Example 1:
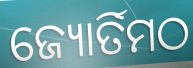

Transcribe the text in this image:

ଜ୍ୟୋର୍ତିମଠ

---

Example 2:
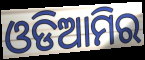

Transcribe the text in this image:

ଓଡିଆମିର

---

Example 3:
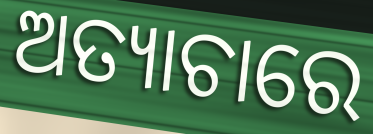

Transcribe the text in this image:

ଅତ୍ୟାଚାରେ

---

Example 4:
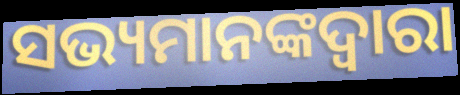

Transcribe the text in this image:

ସଭ୍ୟମାନଙ୍କଦ୍ୱାରା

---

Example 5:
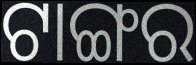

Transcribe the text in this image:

ଟାଙ୍ଗର